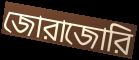
জোরাজোরি